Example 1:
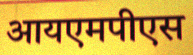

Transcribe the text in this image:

आयएमपीएस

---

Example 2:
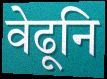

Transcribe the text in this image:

वेढूनि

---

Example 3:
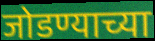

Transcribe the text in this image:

जोडण्याच्या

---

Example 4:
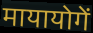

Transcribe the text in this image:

मायायोगें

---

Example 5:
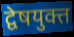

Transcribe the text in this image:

द्वेषयुक्त